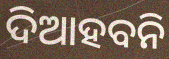
ଦିଆହବନି